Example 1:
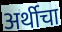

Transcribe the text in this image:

अर्थीचा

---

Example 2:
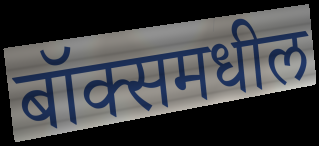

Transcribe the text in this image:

बॉक्समधील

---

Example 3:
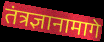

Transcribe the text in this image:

तंत्रज्ञानामागे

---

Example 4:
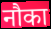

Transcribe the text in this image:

नौका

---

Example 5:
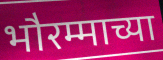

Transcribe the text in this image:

भौरम्माच्या